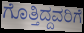
ಗೊತ್ತಿದ್ದವರಿಗೆ